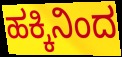
ಹಕ್ಕಿನಿಂದ